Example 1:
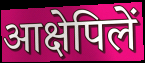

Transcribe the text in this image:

आक्षेपिलें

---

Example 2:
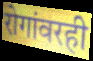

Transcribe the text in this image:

रोगांवरही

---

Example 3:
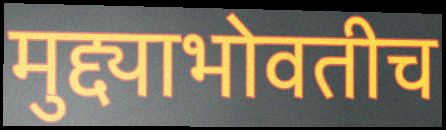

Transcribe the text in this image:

मुद्द्याभोवतीच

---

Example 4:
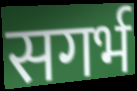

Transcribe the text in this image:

सगर्भ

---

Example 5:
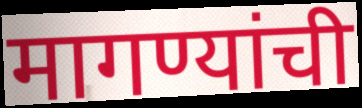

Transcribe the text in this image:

मागण्यांची